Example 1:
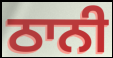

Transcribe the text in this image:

ਠਾਨੀ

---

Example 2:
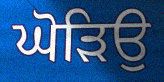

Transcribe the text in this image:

ਘੋੜਿਉ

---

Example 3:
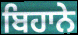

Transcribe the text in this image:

ਬਿਹਾਨੇ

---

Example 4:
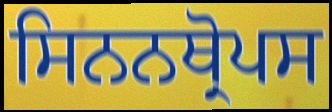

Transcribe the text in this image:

ਸਿਨਨਥ੍ਰੋਪਸ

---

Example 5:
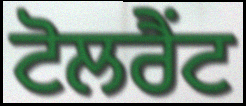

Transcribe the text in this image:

ਟੋਲਰੈਂਟ